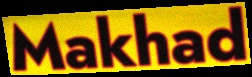
Makhad